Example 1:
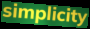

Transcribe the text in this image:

simplicity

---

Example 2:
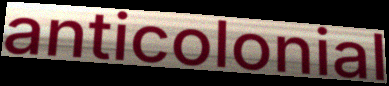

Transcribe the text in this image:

anticolonial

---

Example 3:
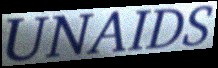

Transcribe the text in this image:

UNAIDS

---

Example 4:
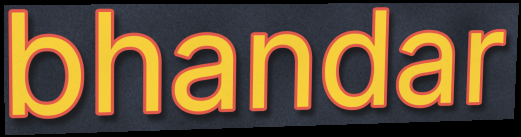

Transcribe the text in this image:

bhandar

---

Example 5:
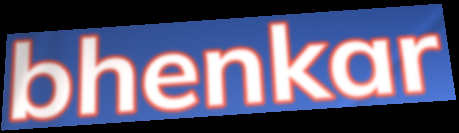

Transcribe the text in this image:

bhenkar